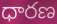
ధారణ